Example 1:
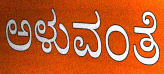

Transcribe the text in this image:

ಅಳುವಂತೆ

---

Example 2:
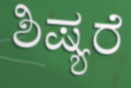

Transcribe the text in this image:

ಶಿಷ್ಯರೆ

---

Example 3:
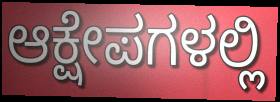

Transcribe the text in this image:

ಆಕ್ಷೇಪಗಳಲ್ಲಿ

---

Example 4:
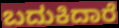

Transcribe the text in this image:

ಬದುಕಿದಾರೆ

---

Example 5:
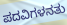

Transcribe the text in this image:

ಪದವಿಗಳನತು